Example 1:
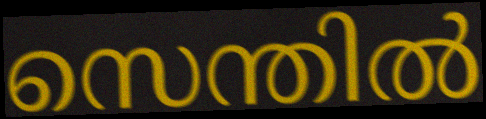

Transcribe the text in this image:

സെന്തിൽ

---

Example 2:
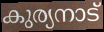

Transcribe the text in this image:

കുര്യനാട്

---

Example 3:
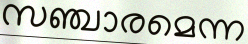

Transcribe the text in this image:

സഞ്ചാരമെന്ന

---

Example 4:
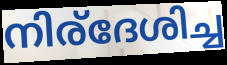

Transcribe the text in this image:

നിര്ദേശിച്ച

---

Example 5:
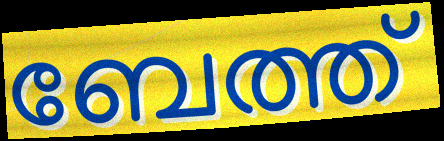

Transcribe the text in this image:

ബേത്ത്